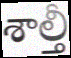
శాల్తీ